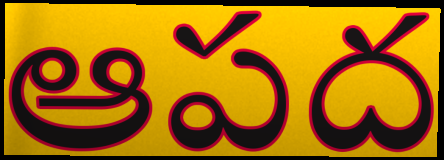
ఆపద